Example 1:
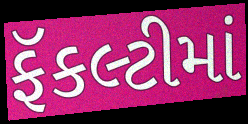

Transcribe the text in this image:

ફૅકલ્ટીમાં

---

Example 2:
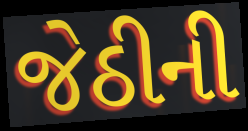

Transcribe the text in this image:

જેઠીની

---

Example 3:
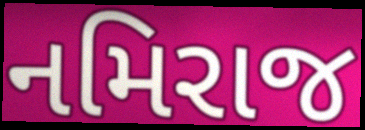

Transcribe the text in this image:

નમિરાજ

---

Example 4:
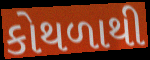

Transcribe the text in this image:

કોથળાથી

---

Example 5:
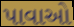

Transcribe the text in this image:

પાવાઓ